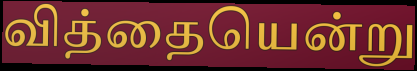
வித்தையென்று